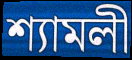
শ্যামলী